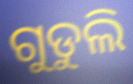
ଗୁଡୁଲି